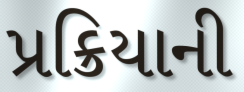
પ્રક્રિયાની